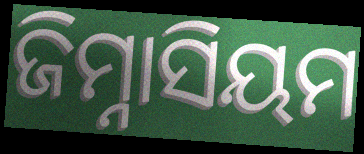
ଜିମ୍ନାସିୟମ